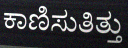
ಕಾಣಿಸುತಿತ್ತು